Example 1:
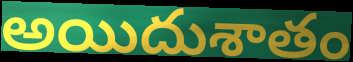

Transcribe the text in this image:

అయిదుశాతం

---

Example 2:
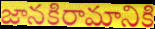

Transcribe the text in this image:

జానకిరామానికి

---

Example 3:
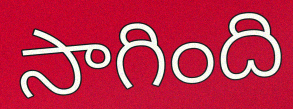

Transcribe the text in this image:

సాగింది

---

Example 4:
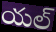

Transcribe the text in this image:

యల్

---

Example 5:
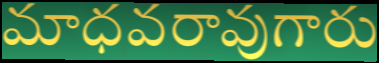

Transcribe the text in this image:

మాధవరావుగారు